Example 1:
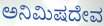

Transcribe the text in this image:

ಅನಿಮಿಷದೇವ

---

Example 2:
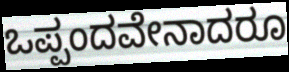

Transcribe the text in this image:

ಒಪ್ಪಂದವೇನಾದರೂ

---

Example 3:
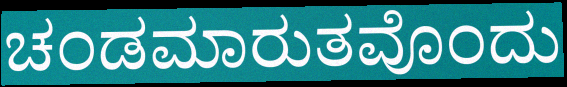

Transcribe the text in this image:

ಚಂಡಮಾರುತವೊಂದು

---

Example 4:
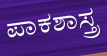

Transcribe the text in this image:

ಪಾಕಶಾಸ್ತ್ರ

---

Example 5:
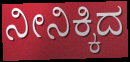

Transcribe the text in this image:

ನೀನಿಕ್ಕಿದ